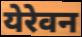
येरेवन